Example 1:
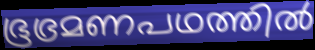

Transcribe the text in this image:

ഭൂഭ്രമണപഥത്തിൽ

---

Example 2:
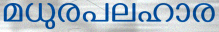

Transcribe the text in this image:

മധുരപലഹാര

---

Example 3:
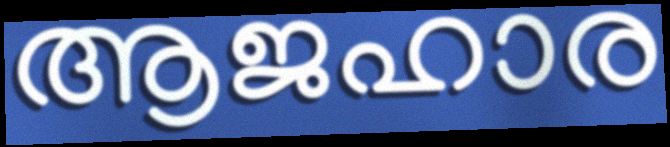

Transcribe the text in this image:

ആജഹാര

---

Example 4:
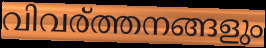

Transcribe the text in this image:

വിവര്ത്തനങ്ങളും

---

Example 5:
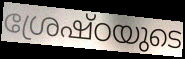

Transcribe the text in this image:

ശ്രേഷ്ഠയുടെ